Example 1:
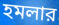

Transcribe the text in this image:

হমলার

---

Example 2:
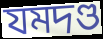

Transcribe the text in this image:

যমদণ্ড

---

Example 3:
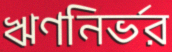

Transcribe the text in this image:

ঋণনির্ভর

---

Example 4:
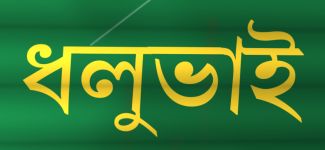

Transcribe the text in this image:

ধলুভাই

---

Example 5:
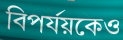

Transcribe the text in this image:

বিপর্যয়কেও